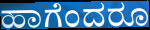
ಹಾಗೆಂದರೂ